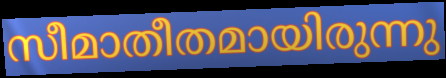
സീമാതീതമായിരുന്നു